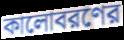
কালোবরণের